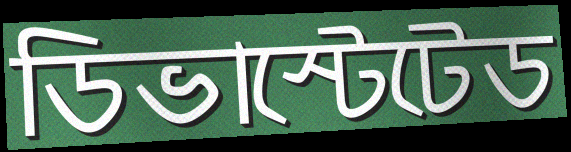
ডিভাস্টেটেড